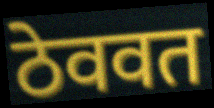
ठेववत